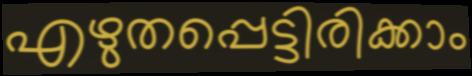
എഴുതപ്പെട്ടിരിക്കാം